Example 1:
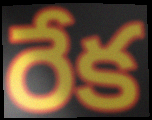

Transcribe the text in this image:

రేక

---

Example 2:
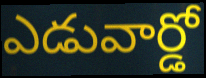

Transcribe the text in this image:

ఎడువార్డో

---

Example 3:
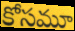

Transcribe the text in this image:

కోసమూ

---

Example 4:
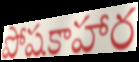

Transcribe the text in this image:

పోషకాహార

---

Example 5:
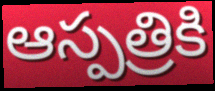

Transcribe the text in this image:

ఆస్పత్రికి